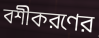
বশীকরণের